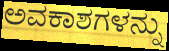
ಅವಕಾಶಗಳನ್ನು